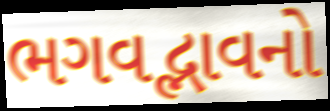
ભગવદ્ભાવનો